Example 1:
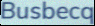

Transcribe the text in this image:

Busbecq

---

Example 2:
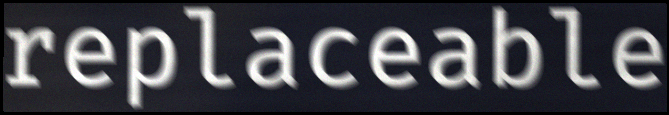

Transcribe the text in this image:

replaceable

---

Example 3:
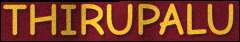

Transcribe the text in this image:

THIRUPALU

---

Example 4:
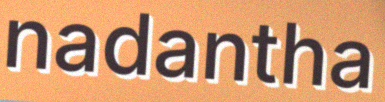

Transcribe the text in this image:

nadantha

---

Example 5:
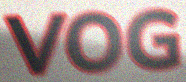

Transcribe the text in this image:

VOG